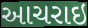
આચરાઇ